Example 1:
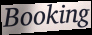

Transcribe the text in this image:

Booking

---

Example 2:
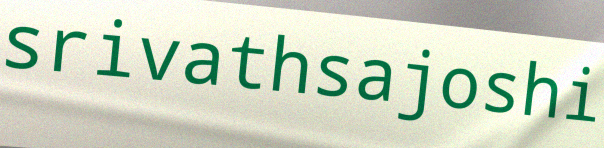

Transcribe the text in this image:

srivathsajoshi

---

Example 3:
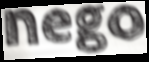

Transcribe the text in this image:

nego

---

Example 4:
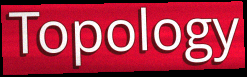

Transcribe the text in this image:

Topology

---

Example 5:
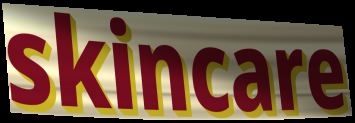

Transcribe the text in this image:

skincare